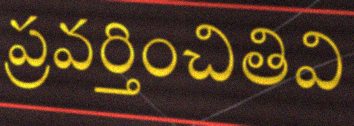
ప్రవర్తించితివి